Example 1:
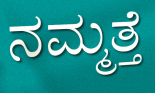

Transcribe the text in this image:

ನಮ್ಮತ್ತೆ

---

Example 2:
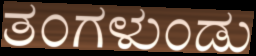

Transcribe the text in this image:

ತಂಗಳುಂಡು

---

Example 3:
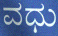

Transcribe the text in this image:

ವಧು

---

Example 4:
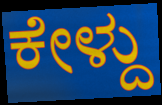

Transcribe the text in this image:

ಕೇಳ್ದು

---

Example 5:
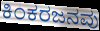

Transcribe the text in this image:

ಕಿಂಕರಜನವು